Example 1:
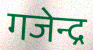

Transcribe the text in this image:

गजेन्‍द्र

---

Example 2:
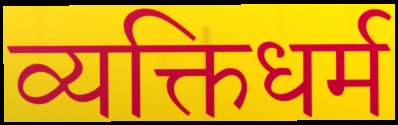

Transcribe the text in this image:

व्यक्तिधर्म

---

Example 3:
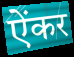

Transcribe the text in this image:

ऐंकर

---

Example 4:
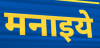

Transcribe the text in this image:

मनाइये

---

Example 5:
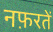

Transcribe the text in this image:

नफ़रतें